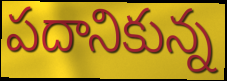
పదానికున్న